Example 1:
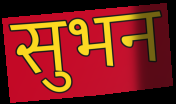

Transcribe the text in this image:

सुभन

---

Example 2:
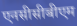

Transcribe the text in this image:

एनसीसीबीएम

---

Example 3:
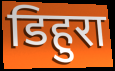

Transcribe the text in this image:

डिहुरा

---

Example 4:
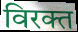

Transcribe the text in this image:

विरक्त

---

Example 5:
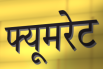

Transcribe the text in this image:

फ्यूमरेट